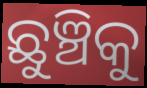
ଛୁଞ୍ଚିକୁ